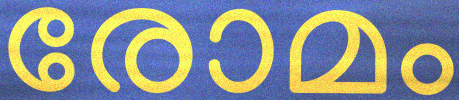
രോമം